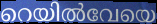
റെയിൽവേയെ